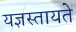
यज्ञस्तायते